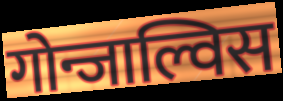
गोन्जाल्विस